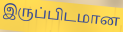
இருப்பிடமான